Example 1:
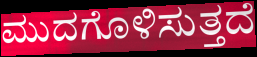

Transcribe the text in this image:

ಮುದಗೊಳಿಸುತ್ತದೆ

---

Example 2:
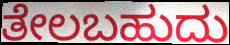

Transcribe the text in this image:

ತೇಲಬಹುದು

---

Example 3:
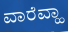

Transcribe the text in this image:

ವಾರೆವ್ಹಾ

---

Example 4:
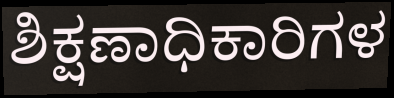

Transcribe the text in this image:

ಶಿಕ್ಷಣಾಧಿಕಾರಿಗಳ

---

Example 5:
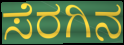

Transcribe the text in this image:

ಸೆರಗಿನ